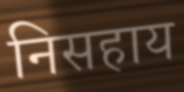
निसहाय